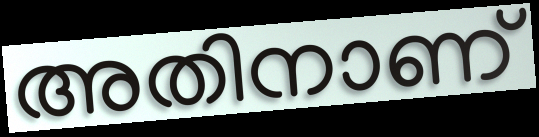
അതിനാണ്